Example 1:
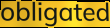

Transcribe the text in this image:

obligated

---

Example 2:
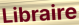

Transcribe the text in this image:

Libraire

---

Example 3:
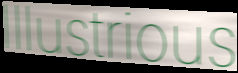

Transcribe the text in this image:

Illustrious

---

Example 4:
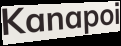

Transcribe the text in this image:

Kanapoi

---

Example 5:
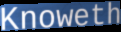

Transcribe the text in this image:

Knoweth